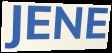
JENE